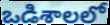
ఒడిశాలలో